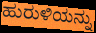
ಹುರುಳಿಯನ್ನು